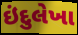
ઇંદુલેખા